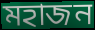
মহাজন